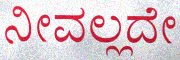
ನೀವಲ್ಲದೇ